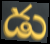
డు